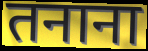
तनाना